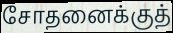
சோதனைக்குத்